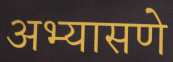
अभ्यासणे